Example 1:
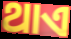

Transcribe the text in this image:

ଥାଏ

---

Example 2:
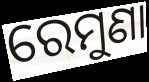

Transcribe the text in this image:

ରେମୁଣା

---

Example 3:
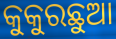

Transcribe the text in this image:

କୁକୁରଛୁଆ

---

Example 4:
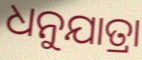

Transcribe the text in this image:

ଧନୁଯାତ୍ରା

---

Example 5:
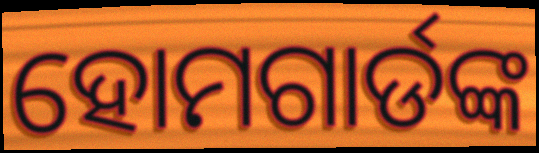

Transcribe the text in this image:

ହୋମଗାର୍ଡଙ୍କ